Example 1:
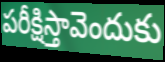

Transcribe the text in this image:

పరీక్షిస్తావెందుకు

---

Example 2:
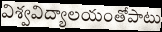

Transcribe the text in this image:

విశ్వవిద్యాలయంతోపాటు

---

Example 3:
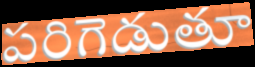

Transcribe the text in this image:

పరిగెడుతూ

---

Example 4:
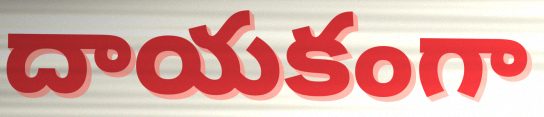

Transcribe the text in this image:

దాయకంగా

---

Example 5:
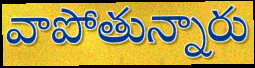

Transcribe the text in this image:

వాపోతున్నారు